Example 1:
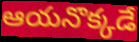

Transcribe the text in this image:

ఆయనొక్కడే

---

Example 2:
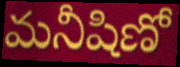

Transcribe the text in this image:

మనీషిణో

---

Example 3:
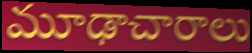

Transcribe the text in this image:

మూఢాచారాలు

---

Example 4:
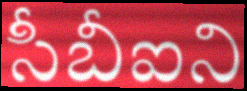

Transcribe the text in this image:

సీబీఐని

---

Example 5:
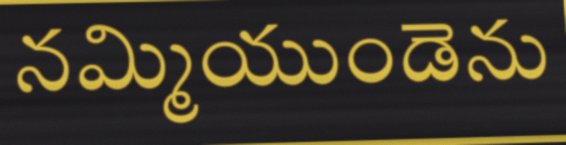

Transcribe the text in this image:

నమ్మియుండెను